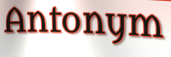
Antonym